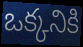
ఒక్కనికి